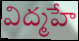
విద్మహే